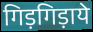
गिड़गिड़ाये